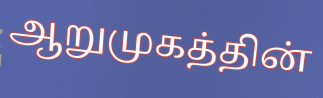
ஆறுமுகத்தின்